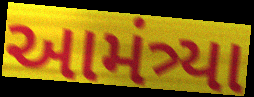
આમંત્ર્યા